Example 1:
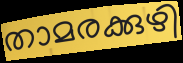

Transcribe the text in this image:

താമരക്കുഴി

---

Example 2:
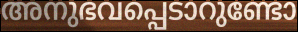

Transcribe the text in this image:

അനുഭവപ്പെടാറുണ്ടോ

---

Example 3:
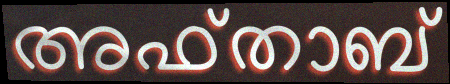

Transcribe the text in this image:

അഫ്താബ്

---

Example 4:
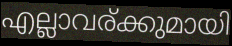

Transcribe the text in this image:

എല്ലാവര്ക്കുമായി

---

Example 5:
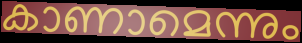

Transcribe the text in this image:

കാണാമെന്നും